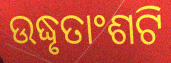
ଉଦ୍ଧୃତାଂଶଟି